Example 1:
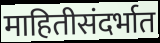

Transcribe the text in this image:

माहितीसंदर्भात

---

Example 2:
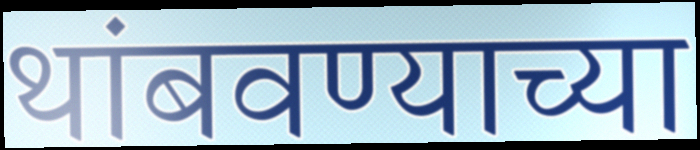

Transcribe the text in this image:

थांबवण्याच्या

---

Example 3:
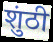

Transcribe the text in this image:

शुंठी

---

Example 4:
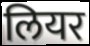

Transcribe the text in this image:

लियर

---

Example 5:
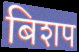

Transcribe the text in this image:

बिशप